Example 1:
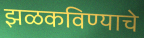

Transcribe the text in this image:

झळकविण्याचे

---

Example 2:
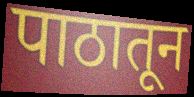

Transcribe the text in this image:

पाठातून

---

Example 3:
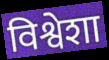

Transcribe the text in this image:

विश्वेशा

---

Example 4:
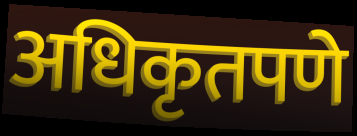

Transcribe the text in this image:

अधिकृतपणे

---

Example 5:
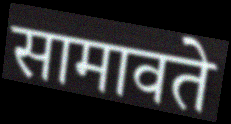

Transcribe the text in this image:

सामावते